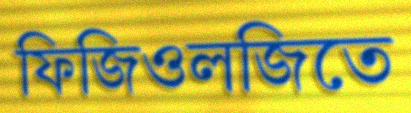
ফিজিওলজিতে